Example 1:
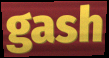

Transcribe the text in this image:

gash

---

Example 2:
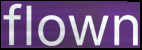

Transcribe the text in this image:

flown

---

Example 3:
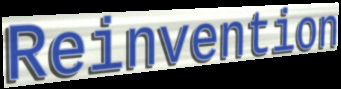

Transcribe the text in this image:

Reinvention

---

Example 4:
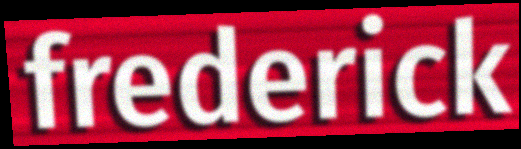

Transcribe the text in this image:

frederick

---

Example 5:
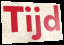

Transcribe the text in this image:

Tijd